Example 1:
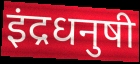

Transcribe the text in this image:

इंद्रधनुषी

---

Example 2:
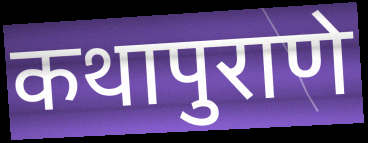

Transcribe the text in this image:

कथापुराणे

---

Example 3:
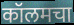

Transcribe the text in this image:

कॉलमचा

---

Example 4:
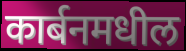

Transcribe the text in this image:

कार्बनमधील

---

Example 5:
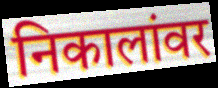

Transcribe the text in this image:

निकालांवर